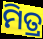
ମିତ୍ର